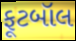
ફૂટબૉલ